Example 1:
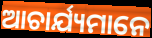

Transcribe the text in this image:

ଆଚାର୍ଯ୍ୟମାନେ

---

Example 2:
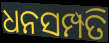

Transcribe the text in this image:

ଧନସମ୍ପତି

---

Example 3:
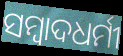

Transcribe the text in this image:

ସମ୍ବାଦଧର୍ମୀ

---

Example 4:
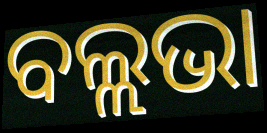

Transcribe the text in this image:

ବଲ୍ଲଭା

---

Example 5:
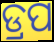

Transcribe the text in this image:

ଡ୍ରପ